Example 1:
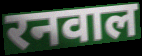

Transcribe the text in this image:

रनवाल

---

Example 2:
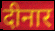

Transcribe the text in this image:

दीनार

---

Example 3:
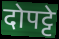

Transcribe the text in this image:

दोपट्टे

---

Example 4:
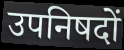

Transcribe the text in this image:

उपनिषदों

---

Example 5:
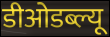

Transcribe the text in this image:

डीओडब्ल्यू